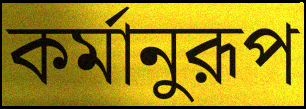
কর্মানুরূপ